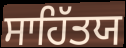
ਸਾਹਿੱਤਯ